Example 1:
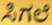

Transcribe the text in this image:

ಸಿಗಲೆ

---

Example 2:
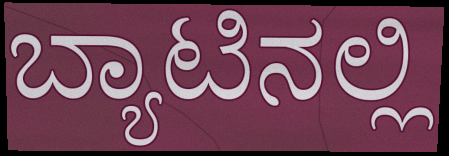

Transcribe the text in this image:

ಬ್ಯಾಟಿನಲ್ಲಿ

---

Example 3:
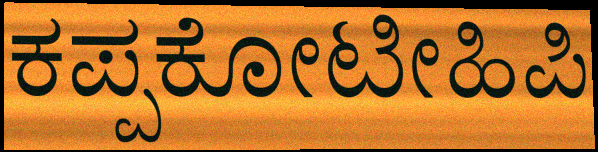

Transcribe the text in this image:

ಕಪ್ಪಕೋಟೀಹಿಪಿ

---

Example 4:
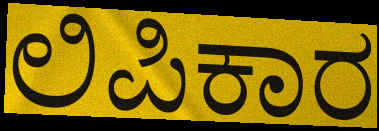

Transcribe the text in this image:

ಲಿಪಿಕಾರ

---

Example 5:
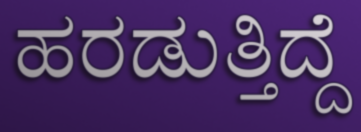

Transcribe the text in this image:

ಹರಡುತ್ತಿದ್ದೆ